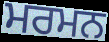
ਮਰਮਨ